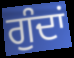
ਗੁੰਦਾਂ